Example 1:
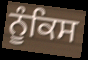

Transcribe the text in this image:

ਨੂੰਕਿਸ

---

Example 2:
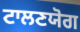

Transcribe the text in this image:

ਟਾਲਣਯੋਗ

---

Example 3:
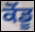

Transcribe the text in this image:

ਕੋਂਡੂ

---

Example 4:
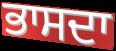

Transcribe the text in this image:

ਭਾਸਦਾ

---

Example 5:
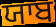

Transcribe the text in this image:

ਯਾਬ